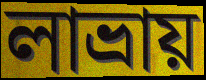
লাভ্ৰায়